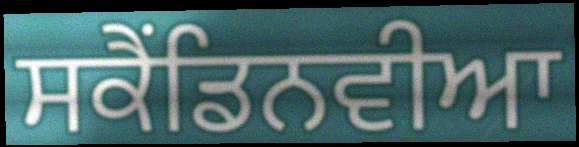
ਸਕੈਂਡਿਨਵੀਆ